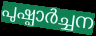
പുഷ്പാർച്ചന